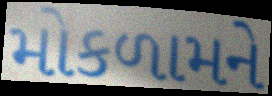
મોકળામને